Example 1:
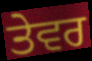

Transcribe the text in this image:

ਤੇਵਰ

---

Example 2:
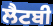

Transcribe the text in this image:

ਲੈਟਬੀ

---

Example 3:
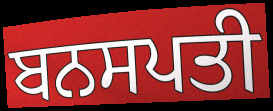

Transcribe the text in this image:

ਬਨਸਪਤੀ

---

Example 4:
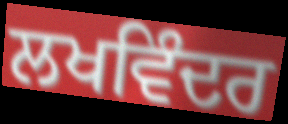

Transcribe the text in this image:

ਲਖਵਿੰਦਰ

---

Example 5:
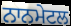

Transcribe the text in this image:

ਨਾਨਮੇਟਲ